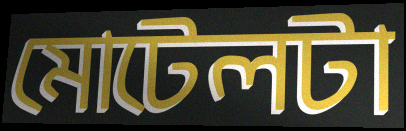
মোটেলটা